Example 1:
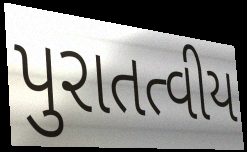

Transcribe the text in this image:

પુરાતત્વીય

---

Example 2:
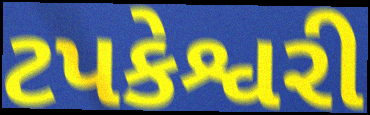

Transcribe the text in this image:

ટપકેશ્વરી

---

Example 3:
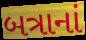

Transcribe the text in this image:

બત્રાનાં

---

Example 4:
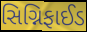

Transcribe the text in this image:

સિગ્નિફાઈડ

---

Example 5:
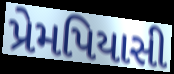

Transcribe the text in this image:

પ્રેમપિયાસી